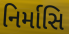
નિર્માસિ